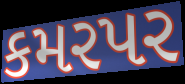
કમરપર